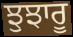
ਝੁਝਾਰੂ